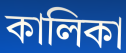
কালিকা